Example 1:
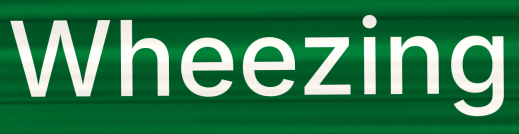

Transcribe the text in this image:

Wheezing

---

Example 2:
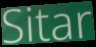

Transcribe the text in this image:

Sitar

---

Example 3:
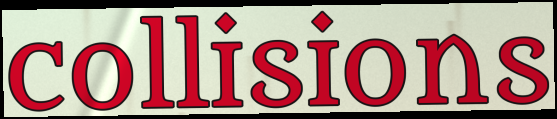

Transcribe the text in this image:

collisions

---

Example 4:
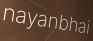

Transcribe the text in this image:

nayanbhai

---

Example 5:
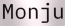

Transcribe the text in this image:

Monju